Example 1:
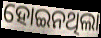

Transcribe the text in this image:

ହୋଇନଥିଲା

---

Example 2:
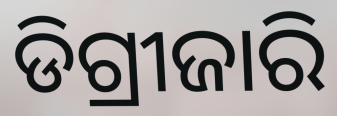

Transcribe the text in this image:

ଡିଗ୍ରୀଜାରି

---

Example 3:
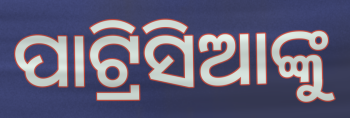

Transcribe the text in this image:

ପାଟ୍ରିସିଆଙ୍କୁ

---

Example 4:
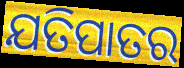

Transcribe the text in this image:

ଯତିପାତର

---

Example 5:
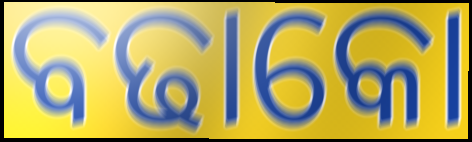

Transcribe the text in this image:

ବଢାକୋ